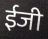
ईजी